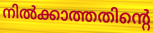
നിൽക്കാത്തതിന്റെ